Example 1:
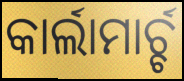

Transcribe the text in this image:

କାର୍ଲାମାର୍ଚ୍ଚ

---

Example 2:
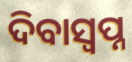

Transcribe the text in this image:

ଦିବାସ୍ଵପ୍ନ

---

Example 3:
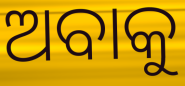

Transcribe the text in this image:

ଅବାକୁ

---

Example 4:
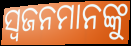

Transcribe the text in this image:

ସ୍ବଜନମାନଙ୍କୁ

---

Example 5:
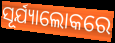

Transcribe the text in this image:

ସୂର୍ଯ୍ୟାଲୋକରେ